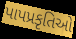
પાપપ્રકૃતિઓ